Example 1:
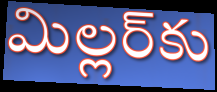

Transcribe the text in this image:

మిల్లర్‌కు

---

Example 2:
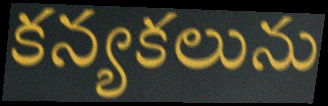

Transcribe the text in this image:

కన్యకలును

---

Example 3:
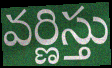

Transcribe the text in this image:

వర్ణిస్తు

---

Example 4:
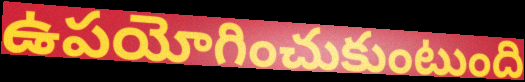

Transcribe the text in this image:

ఉపయోగించుకుంటుంది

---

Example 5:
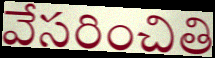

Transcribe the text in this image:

వేసరించితి